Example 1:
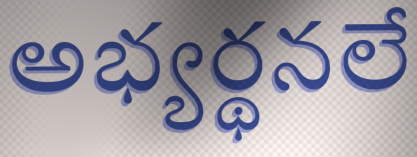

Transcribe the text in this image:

అభ్యర్థనలే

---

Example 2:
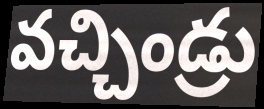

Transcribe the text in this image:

వచ్చిండ్రు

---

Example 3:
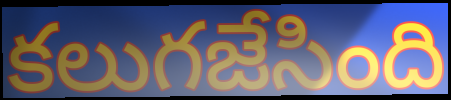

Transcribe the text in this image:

కలుగజేసింది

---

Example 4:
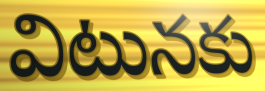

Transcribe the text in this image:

విటునకు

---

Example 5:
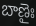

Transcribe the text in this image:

బాణైః